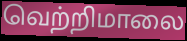
வெற்றிமாலை